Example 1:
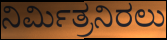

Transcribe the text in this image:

ನಿರ್ಮಿತ್ರನಿರಲು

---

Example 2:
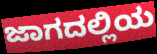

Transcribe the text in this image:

ಜಾಗದಲ್ಲಿಯ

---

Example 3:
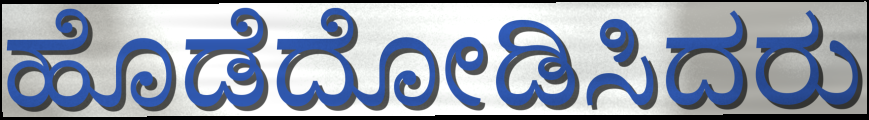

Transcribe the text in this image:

ಹೊಡೆದೋಡಿಸಿದರು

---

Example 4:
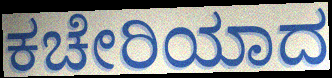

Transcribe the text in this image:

ಕಚೇರಿಯಾದ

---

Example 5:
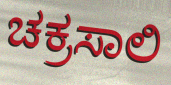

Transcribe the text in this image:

ಚಕ್ರಸಾಲಿ